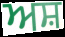
ਅਸ਼